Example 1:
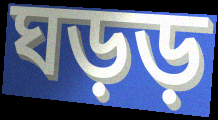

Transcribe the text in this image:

ঘড়ড়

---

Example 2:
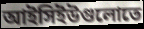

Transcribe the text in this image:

আইসিইউগুলোতে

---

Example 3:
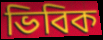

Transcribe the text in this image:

ভিবিক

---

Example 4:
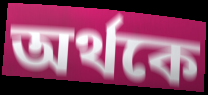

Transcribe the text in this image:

অর্থকে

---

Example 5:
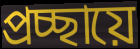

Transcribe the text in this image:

প্রচ্ছায়ে